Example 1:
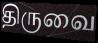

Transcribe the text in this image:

திருவை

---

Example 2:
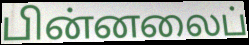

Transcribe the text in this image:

பின்னலைப்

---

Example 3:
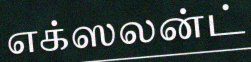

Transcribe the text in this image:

எக்ஸலன்ட்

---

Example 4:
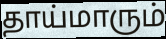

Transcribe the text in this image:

தாய்மாரும்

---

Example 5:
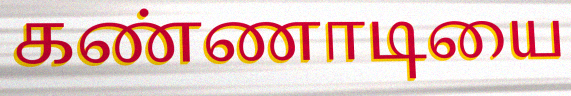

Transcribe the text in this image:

கண்ணாடியை